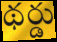
థర్డు